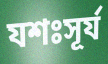
যশঃসূর্য